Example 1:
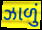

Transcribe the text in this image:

ઝાળું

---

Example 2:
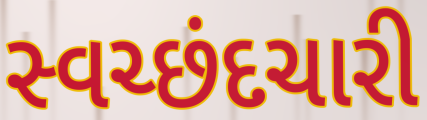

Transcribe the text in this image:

સ્વચ્છંદચારી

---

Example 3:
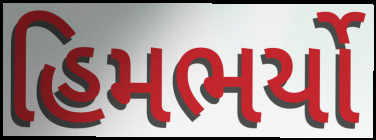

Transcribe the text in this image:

હિમભર્યો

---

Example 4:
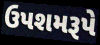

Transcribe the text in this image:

ઉપશમરૂપે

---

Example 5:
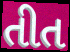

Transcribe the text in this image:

તીત